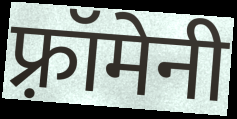
फ़्रॉमेनी